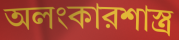
অলংকারশাস্ত্র